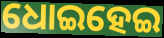
ଧୋଇହେଇ